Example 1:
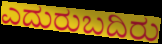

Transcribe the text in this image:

ಎದುರುಬದಿರು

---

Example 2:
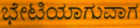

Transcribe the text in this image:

ಭೇಟಿಯಾಗುವಾಗ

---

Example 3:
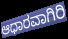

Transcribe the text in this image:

ಆಧಾರವಾಗಿರಿ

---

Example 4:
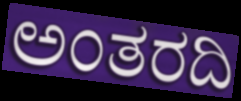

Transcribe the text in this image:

ಅಂತರದಿ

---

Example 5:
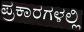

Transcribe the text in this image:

ಪ್ರಕಾರಗಳಲ್ಲಿ